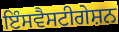
ਇੰਸਵੈਸਟੀਗੇਸ਼ਨ